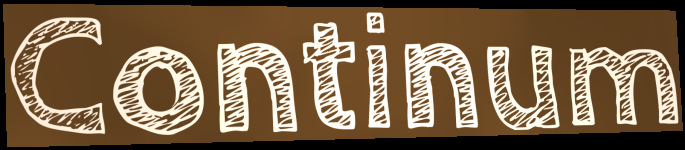
Continum